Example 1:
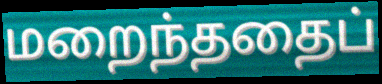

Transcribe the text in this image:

மறைந்ததைப்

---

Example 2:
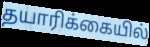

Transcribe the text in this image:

தயாரிக்கையில்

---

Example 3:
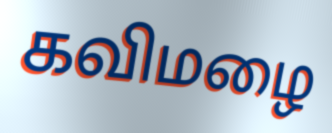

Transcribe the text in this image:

கவிமழை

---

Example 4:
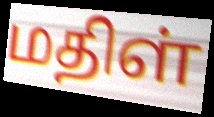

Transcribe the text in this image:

மதிள்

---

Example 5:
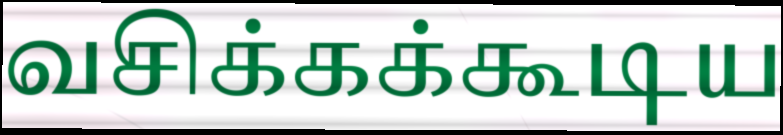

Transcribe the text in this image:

வசிக்கக்கூடிய